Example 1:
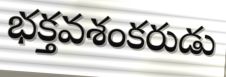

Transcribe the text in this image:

భక్తవశంకరుడు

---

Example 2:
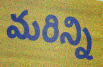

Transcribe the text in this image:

మరిన్ని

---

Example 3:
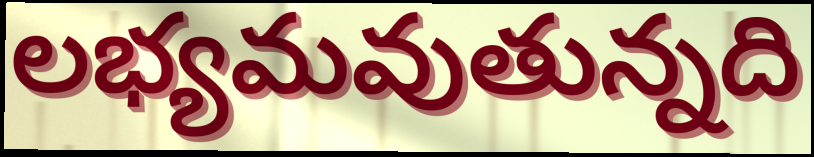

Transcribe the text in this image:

లభ్యమవుతున్నది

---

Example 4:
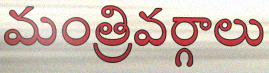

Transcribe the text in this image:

మంత్రివర్గాలు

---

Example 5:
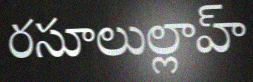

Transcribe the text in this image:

రసూలుల్లాహ్